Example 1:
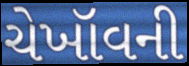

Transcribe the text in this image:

ચેખૉવની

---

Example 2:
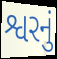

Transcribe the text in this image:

શ્વરનું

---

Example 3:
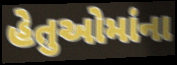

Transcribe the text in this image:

હેતુઓમાંના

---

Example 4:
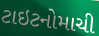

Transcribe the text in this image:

ટાઇટનોમાચી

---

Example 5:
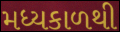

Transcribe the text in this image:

મધ્યકાળથી